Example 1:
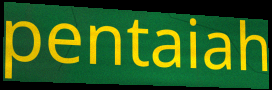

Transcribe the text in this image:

pentaiah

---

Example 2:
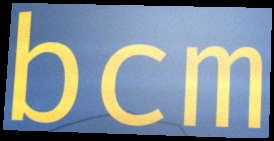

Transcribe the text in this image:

bcm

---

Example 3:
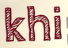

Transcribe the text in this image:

khi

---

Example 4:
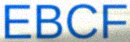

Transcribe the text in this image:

EBCF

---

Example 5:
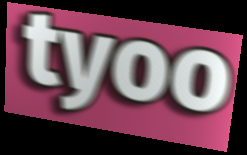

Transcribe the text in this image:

tyoo